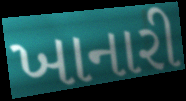
ખાનારી